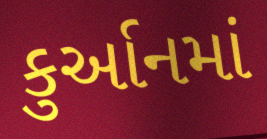
કુર્આનમાં